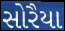
સોરૈયા